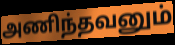
அணிந்தவனும்